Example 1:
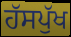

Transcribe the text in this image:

ਹੱਸਪੁੱਖ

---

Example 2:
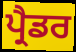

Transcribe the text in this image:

ਪ੍ਰੈਡਰ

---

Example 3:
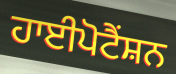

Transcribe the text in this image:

ਹਾਈਪੋਟੈਂਸ਼ਨ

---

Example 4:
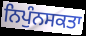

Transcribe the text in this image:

ਨਿਪੁੰਨਸਕਤਾ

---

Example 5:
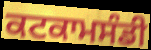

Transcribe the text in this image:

ਕਟਕਾਮਸੰਡੀ